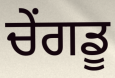
ਚੇਂਗਡੂ